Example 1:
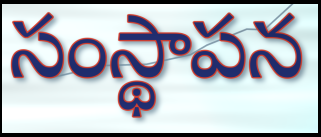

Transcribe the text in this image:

సంస్థాపన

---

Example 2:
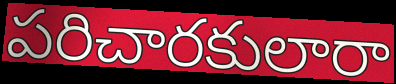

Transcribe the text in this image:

పరిచారకులారా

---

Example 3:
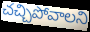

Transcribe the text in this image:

చచ్చిపోవాలని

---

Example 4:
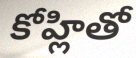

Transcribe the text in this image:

కోహ్లితో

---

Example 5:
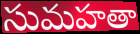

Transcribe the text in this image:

సుమహతా